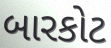
બારકોટ